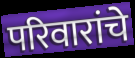
परिवारांचे